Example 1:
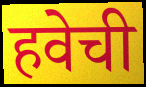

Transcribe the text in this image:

हवेची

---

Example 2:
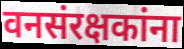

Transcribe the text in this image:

वनसंरक्षकांना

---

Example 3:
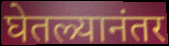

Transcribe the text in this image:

घेतल्यानंतर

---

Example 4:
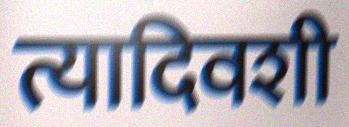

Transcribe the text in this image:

त्यादिवशी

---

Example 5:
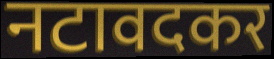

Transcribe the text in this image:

नटावदकर